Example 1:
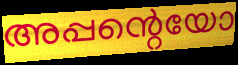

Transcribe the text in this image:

അപ്പന്റെയോ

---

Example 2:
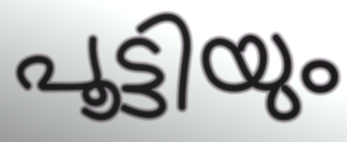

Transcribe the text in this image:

പൂട്ടിയും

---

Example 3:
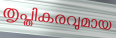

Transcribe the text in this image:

തൃപ്തികരവുമായ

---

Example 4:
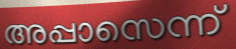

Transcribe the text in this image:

അപ്പാസെന്ന്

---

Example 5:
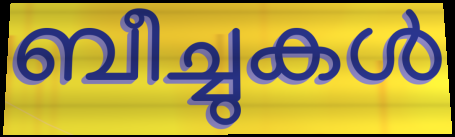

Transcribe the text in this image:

ബീച്ചുകൾ